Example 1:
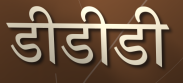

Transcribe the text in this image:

डीडीडी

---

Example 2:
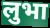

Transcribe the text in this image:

लुभा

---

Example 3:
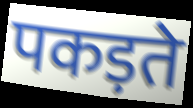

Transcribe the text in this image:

पकड़ते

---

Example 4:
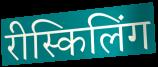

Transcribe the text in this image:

रीस्किलिंग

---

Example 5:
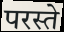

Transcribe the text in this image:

परस्ते